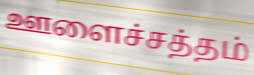
ஊளைச்சத்தம்